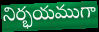
నిర్భయముగా